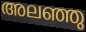
അലഞ്ഞു